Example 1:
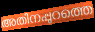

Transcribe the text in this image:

അതിനപ്പുറത്തെ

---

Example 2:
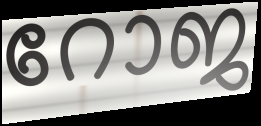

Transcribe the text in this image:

റോജ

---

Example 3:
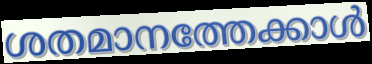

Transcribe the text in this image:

ശതമാനത്തേക്കാൾ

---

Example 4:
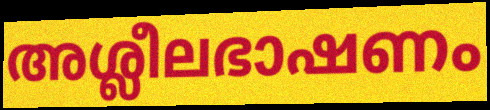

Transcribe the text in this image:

അശ്ലീലഭാഷണം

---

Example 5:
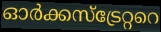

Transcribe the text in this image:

ഓർക്കസ്ട്രേറ്ററെ